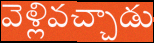
వెళ్లివచ్చాడు